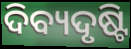
ଦିବ୍ୟଦୃଷ୍ଟି